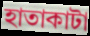
হাতাকাটা